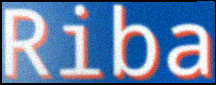
Riba